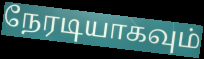
நேரடியாகவும்